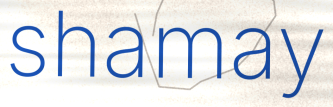
shamay